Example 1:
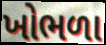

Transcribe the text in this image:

ખોભળા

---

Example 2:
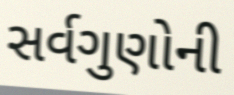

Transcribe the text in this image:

સર્વગુણોની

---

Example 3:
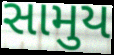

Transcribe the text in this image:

સામુય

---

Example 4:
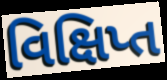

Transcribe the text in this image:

વિક્ષિપ્ત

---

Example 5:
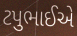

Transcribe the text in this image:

ટપુભાઈએ